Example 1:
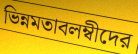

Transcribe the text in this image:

ভিন্নমতাবলম্বীদের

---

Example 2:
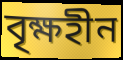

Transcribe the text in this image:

বৃক্ষহীন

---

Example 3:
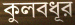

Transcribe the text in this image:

কুলবধূর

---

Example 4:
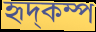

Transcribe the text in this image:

হৃদ্কম্প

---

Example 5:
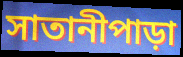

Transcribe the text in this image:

সাতানীপাড়া